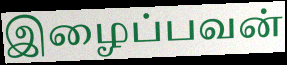
இழைப்பவன்